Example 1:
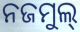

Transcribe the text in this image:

ନଜମୁଲ୍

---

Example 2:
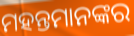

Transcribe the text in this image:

ମହନ୍ତମାନଙ୍କର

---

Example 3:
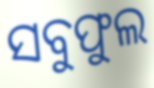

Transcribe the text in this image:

ସବୁଫୁଲ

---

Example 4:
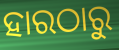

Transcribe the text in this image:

ହାରଠାରୁ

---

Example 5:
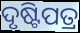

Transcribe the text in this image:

ଦୃଷ୍ଟିପତ୍ର